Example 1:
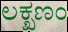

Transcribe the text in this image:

ಲಕ್ಖಣಂ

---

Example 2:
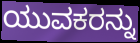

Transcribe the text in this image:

ಯುವಕರನ್ನು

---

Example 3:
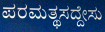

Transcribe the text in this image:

ಪರಮತ್ಥಸದ್ದೇಸು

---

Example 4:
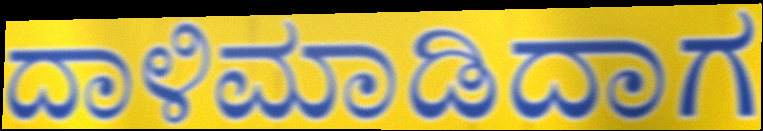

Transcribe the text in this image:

ದಾಳಿಮಾಡಿದಾಗ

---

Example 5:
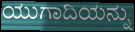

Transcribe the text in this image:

ಯುಗಾದಿಯನ್ನು